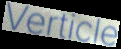
Verticle